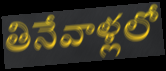
తినేవాళ్లలో